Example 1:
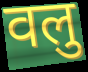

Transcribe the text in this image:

वलु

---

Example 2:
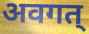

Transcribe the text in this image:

अवगत्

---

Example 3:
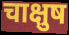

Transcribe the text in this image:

चाक्षुष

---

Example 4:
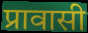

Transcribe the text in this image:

प्रावासी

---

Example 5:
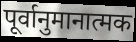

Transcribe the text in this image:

पूर्वानुमानात्मक